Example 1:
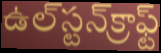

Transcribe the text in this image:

ఉల్‌స్టన్‌క్రాఫ్ట్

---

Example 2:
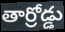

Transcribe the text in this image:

తార్రోడ్డు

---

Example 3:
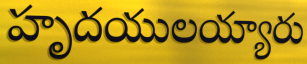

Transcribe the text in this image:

హృదయులయ్యారు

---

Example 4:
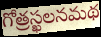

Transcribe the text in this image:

గోత్రస్ఖలనమథ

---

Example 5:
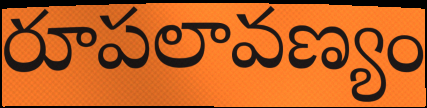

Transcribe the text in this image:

రూపలావణ్యం